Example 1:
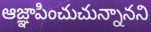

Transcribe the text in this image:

ఆజ్ఞాపించుచున్నానని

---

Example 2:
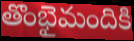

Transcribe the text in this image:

తొంభైమందికి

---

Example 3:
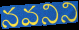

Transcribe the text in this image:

నవనిని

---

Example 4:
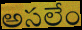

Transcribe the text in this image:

అసలేం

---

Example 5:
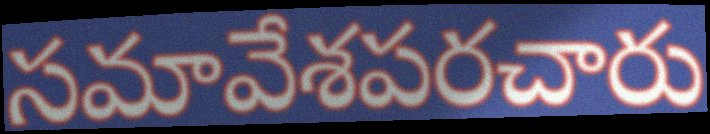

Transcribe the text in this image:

సమావేశపరచారు